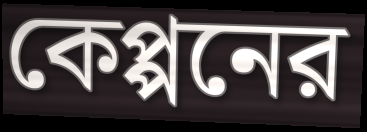
কেপ্পনের